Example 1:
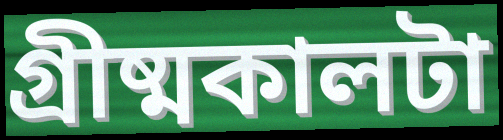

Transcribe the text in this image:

গ্রীষ্মকালটা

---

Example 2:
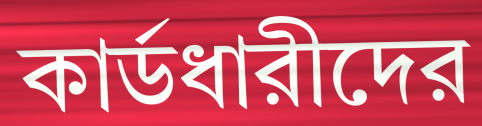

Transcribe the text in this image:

কার্ডধারীদের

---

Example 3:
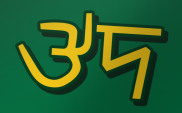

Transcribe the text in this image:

ঔদ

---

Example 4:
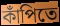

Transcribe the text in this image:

কাঁপিতে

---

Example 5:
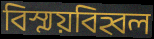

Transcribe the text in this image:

বিস্ময়বিহ্বল